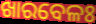
ଖାରବେଳଃ